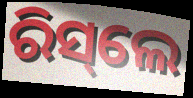
ରିସ୍‌ଲେ